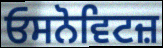
ਓਸਨੋਵਿਟਜ਼